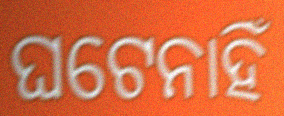
ଘଟେନାହିଁ